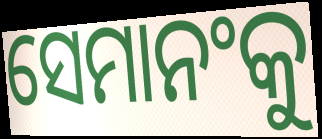
ସେମାନଂକୁ